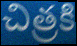
చిత్రకి